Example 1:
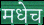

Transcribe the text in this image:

मधेच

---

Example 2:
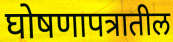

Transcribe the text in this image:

घोषणापत्रातील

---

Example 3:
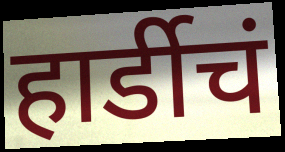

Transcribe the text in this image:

हार्डीचं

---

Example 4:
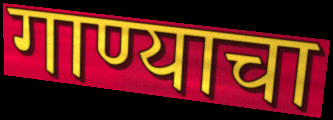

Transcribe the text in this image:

गाण्याचा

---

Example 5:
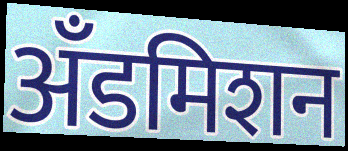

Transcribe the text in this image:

अँडमिशन